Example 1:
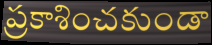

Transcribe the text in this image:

ప్రకాశించకుండా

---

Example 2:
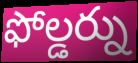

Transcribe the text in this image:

ఫోల్డర్ను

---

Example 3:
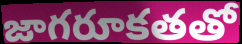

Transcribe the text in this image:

జాగరూకతతో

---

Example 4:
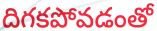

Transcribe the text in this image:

దిగకపోవడంతో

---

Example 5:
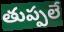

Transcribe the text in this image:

తుప్పలే